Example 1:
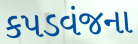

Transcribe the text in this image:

કપડવંજના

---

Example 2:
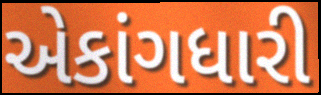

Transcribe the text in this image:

એકાંગધારી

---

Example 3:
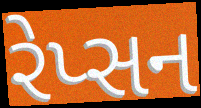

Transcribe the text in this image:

રેપ્સન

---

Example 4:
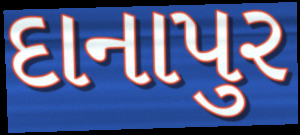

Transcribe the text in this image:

દાનાપુર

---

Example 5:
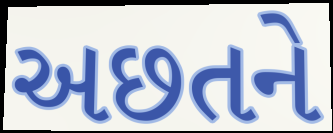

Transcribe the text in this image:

અછતને